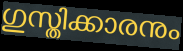
ഗുസ്തിക്കാരനും